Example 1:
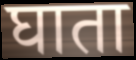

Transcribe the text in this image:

घाता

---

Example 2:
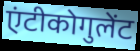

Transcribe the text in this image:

एंटीकोगुलेंट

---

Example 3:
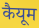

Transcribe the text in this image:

कैयूम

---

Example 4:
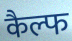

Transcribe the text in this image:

कैल्फ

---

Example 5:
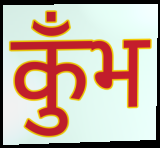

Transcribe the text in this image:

कुँभ